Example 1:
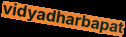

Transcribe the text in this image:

vidyadharbapat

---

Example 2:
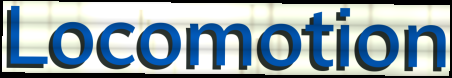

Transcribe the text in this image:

Locomotion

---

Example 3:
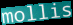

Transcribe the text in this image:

mollis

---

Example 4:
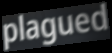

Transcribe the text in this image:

plagued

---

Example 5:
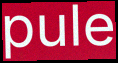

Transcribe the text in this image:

pule